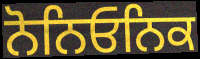
ਨੋਨਿਓਨਿਕ